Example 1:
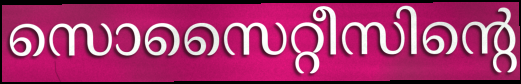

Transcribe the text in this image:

സൊസൈറ്റീസിന്റെ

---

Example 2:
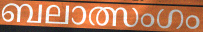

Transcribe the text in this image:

ബലാത്സംഗം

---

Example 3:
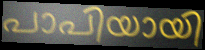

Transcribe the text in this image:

പാപിയായി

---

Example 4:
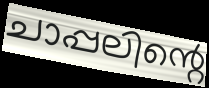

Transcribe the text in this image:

ചാപ്പലിന്റെ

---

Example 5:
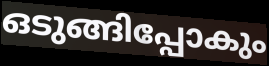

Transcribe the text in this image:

ഒടുങ്ങിപ്പോകും